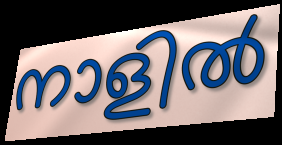
നാളിൽ